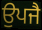
ਉਪਜੈ